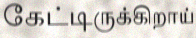
கேட்டிருக்கிறாய்